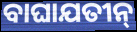
ବାଘାଯତୀନ୍